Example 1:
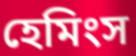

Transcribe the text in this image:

হেমিংস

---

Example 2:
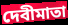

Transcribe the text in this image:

দেবীমাতা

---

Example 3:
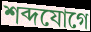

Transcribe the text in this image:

শব্দযোগে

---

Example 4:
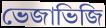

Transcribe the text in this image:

ভেজাভিজি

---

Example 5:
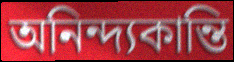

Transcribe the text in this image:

অনিন্দ্যকান্তি